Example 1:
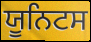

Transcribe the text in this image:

ਯੂਨਿਟਸ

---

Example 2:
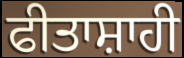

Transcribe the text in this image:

ਫੀਤਾਸ਼ਾਹੀ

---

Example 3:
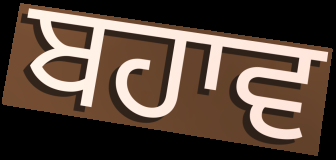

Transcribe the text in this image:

ਬਹਾਵ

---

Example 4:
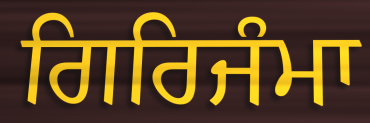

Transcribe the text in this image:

ਗਿਰਿਜੰਮਾ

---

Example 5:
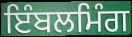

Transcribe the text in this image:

ਇੰਬਲਮਿੰਗ